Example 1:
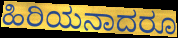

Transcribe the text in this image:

ಹಿರಿಯನಾದರೂ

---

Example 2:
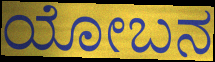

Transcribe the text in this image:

ಯೋಬನ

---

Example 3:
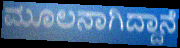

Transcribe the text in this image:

ಮೂಲನಾಗಿದ್ದಾನೆ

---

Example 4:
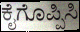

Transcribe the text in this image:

ಕೈಗೊಪ್ಪಿಸಿ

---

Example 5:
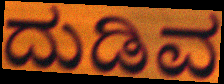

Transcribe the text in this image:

ದುಡಿವ